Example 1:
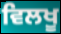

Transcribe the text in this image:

ਵਿਲਖੂ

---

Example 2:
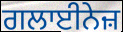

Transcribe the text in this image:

ਗਲਾਈਨੇਜ਼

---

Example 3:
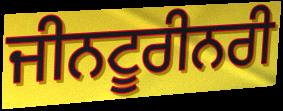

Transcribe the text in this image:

ਜੀਨਟੂਰੀਨਰੀ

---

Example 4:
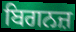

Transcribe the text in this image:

ਬਿਗਨਜ਼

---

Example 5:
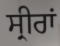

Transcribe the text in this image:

ਸ੍ਰੀਰਾਂ